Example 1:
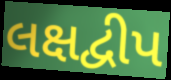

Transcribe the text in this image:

લક્ષદ્વીપ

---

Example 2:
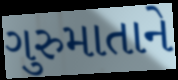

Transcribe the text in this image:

ગુરુમાતાને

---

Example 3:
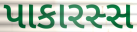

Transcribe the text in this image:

પાકારસ્સ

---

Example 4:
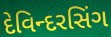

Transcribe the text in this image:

દેવિન્દરસિંગ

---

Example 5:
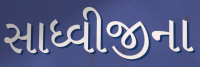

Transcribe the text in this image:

સાધ્વીજીના